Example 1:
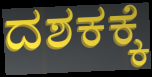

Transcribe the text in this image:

ದಶಕಕ್ಕೆ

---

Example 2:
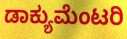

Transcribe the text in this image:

ಡಾಕ್ಯುಮೆಂಟರಿ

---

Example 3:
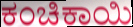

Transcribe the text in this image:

ಕಂಚಿಕಾಯಿ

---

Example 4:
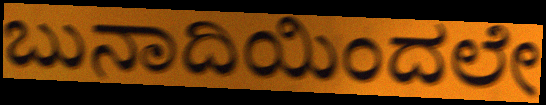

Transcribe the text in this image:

ಬುನಾದಿಯಿಂದಲೇ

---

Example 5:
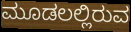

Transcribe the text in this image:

ಮೂಡಲಲ್ಲಿರುವ